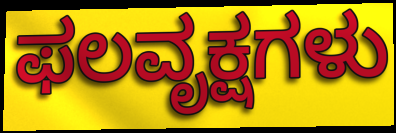
ಫಲವೃಕ್ಷಗಳು